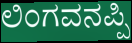
ಲಿಂಗವನಪ್ಪಿ